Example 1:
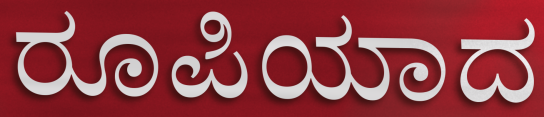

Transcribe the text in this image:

ರೂಪಿಯಾದ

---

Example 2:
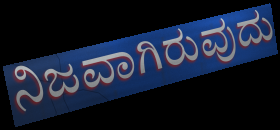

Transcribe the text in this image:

ನಿಜವಾಗಿರುವುದು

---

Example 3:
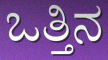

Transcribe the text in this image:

ಒತ್ತಿನ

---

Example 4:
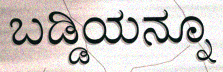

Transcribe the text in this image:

ಬಡ್ಡಿಯನ್ನೂ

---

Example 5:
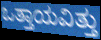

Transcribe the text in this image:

ಒತ್ತಾಯವಿತ್ತು